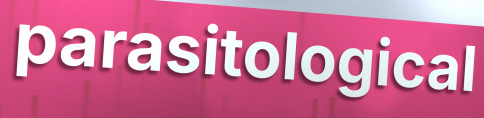
parasitological